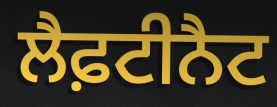
ਲੈਫ਼ਟੀਨੈਟ